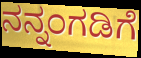
ನನ್ನಂಗಡಿಗೆ